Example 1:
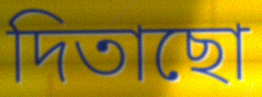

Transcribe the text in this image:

দিতাছো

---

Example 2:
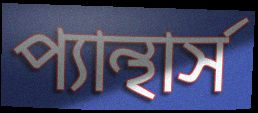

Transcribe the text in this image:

প্যান্থার্স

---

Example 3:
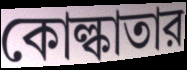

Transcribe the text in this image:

কোল্কাতার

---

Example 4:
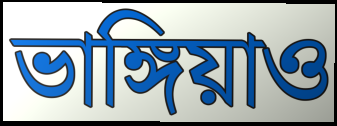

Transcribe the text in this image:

ভাঙ্গিয়াও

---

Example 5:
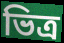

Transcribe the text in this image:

ভিত্র